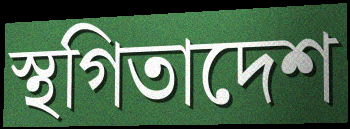
স্থগিতাদেশ